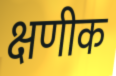
क्षणीक